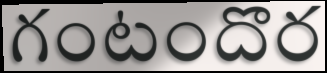
గంటందొర